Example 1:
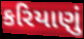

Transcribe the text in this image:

કરિયાણું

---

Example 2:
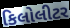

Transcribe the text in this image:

કિલોલીટર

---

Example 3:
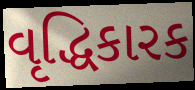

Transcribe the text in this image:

વૃદ્ધિકારક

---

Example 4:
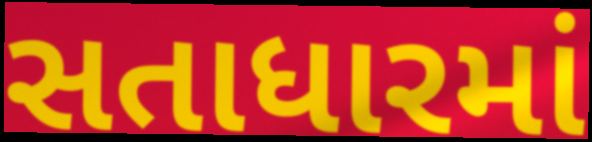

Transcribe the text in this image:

સતાધારમાં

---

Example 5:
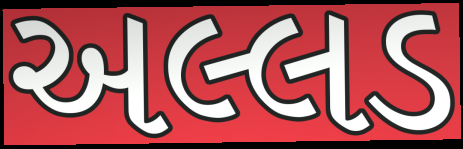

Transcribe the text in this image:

અલ્લડ